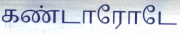
கண்டாரோடே